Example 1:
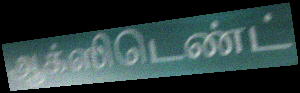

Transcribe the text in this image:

ஆக்ஸிடெண்ட்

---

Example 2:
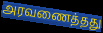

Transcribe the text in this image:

அரவணைத்தது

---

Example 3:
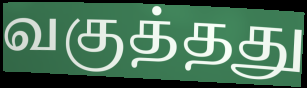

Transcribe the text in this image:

வகுத்தது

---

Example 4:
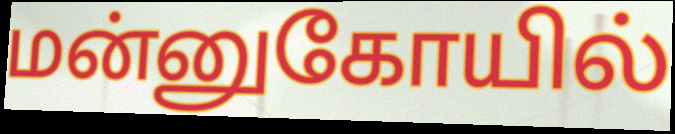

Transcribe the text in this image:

மன்னுகோயில்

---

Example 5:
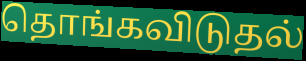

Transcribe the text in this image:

தொங்கவிடுதல்